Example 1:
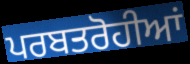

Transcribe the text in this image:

ਪਰਬਤਰੋਹੀਆਂ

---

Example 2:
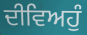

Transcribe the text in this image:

ਦੀਵਿਅਹੁੰ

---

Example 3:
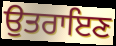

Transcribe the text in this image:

ਉਤਰਾਇਣ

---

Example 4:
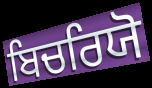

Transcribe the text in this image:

ਬਿਚਰਿਯੋ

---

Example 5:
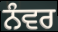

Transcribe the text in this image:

ਨੰਵਰ